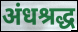
अंधश्रद्ध